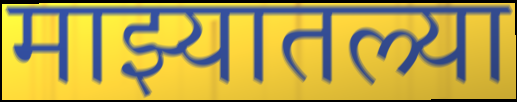
माझ्यातल्या